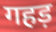
गहड़